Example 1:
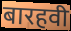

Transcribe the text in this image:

बारहवी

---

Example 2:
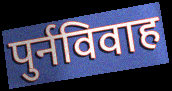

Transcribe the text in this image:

पुर्नविवाह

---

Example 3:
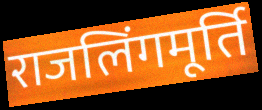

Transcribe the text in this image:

राजलिंगमूर्ति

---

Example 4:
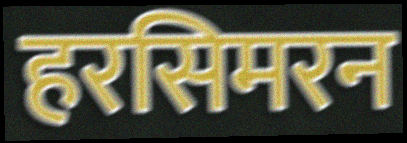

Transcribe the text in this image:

हरसिमरन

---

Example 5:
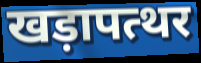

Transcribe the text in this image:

खड़ापत्थर